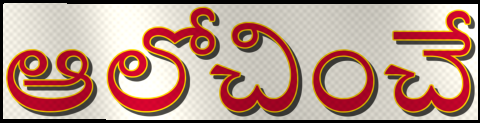
ఆలోచించే